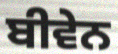
ਬੀਵੇਨ